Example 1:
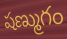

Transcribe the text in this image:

షణ్ముగం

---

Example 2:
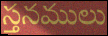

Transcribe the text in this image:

స్తనములు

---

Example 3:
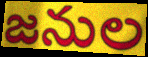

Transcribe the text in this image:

జనుల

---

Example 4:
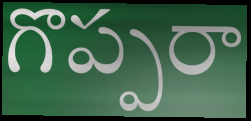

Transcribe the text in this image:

గొప్పరా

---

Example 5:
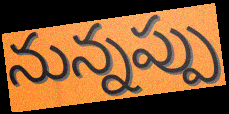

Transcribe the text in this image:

నున్నప్పు